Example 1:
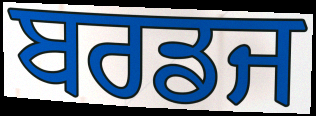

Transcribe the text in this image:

ਬਰਡਜ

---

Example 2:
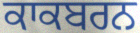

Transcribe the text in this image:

ਕਾਕਬਰਨ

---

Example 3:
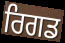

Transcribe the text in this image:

ਰਿਗਡ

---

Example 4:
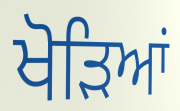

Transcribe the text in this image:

ਖੋੜਿਆਂ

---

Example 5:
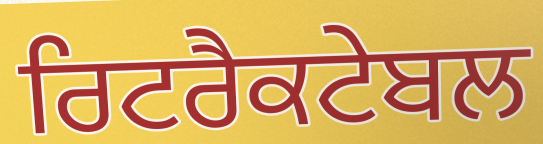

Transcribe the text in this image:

ਰਿਟਰੈਕਟੇਬਲ